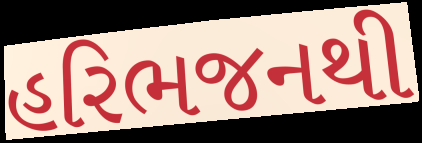
હરિભજનથી